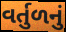
વર્તુળનું